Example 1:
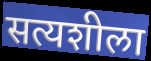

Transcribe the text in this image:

सत्यशीला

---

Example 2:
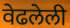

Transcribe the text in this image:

वेढलेली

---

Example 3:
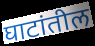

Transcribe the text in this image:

घाटांतील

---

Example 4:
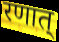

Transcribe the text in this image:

रणात्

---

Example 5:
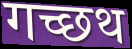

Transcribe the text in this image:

गच्छथ